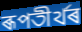
ৰূপতীৰ্থৰ